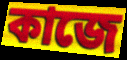
কাজে